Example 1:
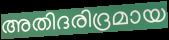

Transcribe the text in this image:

അതിദരിദ്രമായ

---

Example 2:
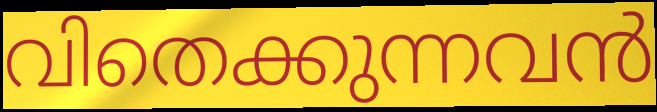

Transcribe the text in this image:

വിതെക്കുന്നവൻ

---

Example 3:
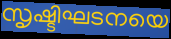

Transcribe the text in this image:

സൃഷ്ടിഘടനയെ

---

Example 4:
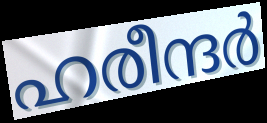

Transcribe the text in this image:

ഹരീന്ദർ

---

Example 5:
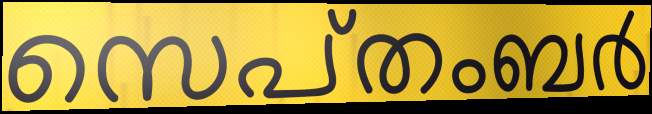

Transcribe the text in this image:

സെപ്‌തംബർ